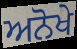
ਅਨੋਖੇ